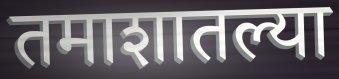
तमाशातल्या